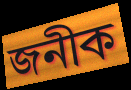
জনীক